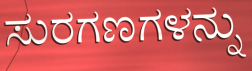
ಸುರಗಣಗಳನ್ನು